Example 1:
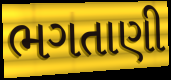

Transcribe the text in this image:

ભગતાણી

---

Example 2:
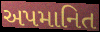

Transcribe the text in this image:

અપમાનિત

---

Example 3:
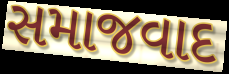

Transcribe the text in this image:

સમાજવાદ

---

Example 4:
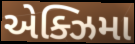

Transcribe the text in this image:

એક્ઝિમા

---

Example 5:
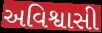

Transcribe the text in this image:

અવિશ્વાસી